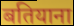
बतियाना